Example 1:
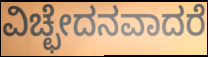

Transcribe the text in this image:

ವಿಚ್ಛೇದನವಾದರೆ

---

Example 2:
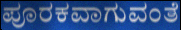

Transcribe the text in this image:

ಪೂರಕವಾಗುವಂತೆ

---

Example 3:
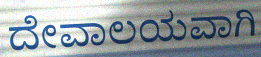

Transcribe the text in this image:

ದೇವಾಲಯವಾಗಿ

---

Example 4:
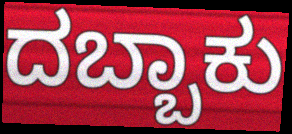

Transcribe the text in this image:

ದಬ್ಬಾಕು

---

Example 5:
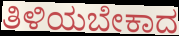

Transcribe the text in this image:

ತಿಳಿಯಬೇಕಾದ